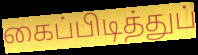
கைப்பிடித்துப்